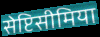
सेप्टिसीमिया